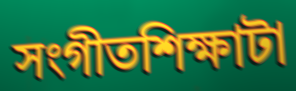
সংগীতশিক্ষাটা